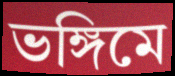
ভঙ্গিমে